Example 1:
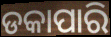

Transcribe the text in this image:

ଡକାପାରି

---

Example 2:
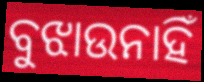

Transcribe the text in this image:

ବୁଝାଉନାହିଁ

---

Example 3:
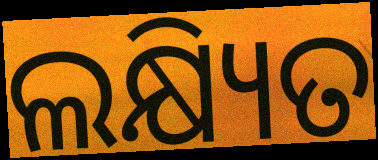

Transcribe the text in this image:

ଲକ୍ଷ୍ୟିତ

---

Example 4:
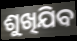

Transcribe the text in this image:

ଶୁଖିଯିବ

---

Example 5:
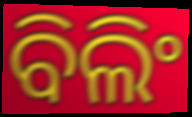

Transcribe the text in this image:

ବିଲିଂ